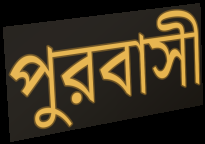
পুরবাসী